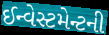
ઈન્વેસ્ટમેન્ટની